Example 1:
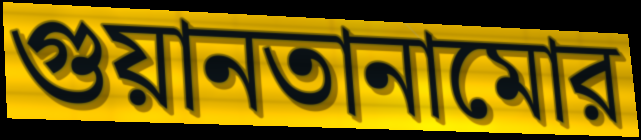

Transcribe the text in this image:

গুয়ানতানামোর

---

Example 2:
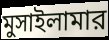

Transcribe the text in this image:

মুসাইলামার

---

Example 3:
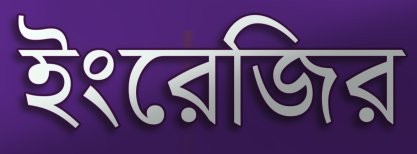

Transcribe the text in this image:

ইংরেজির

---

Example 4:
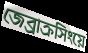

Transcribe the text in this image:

জেব্রাক্রসিংয়ে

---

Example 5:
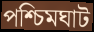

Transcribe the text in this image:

পশ্চিমঘাট